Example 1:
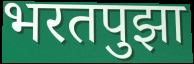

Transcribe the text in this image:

भरतपुझा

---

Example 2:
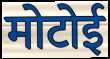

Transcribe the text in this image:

मोटोई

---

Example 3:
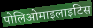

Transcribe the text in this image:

पोलिओमाइलाइटिस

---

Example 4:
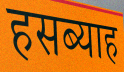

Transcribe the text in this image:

हसब्याह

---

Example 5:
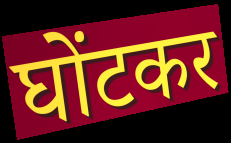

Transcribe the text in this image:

घोंटकर